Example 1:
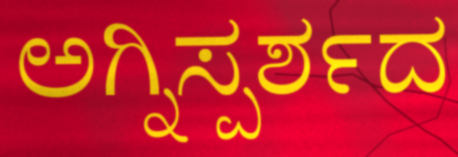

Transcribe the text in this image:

ಅಗ್ನಿಸ್ಪರ್ಶದ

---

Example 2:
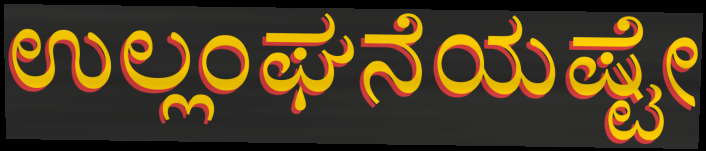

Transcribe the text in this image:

ಉಲ್ಲಂಘನೆಯಷ್ಟೇ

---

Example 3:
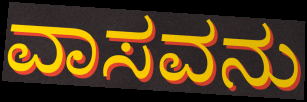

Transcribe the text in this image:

ವಾಸವನು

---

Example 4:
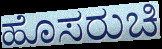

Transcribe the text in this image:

ಹೊಸರುಚಿ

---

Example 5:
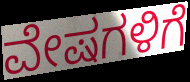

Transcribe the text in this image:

ವೇಷಗಳಿಗೆ